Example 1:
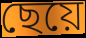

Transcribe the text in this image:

ছেয়ে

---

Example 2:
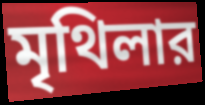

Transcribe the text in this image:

মৃথিলার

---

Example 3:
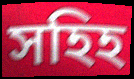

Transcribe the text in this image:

সহিহ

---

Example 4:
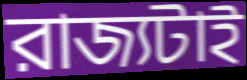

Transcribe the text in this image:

রাজ্যটাই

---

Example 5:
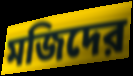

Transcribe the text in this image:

মজিদের